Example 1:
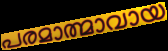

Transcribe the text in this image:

പരമാത്മാവായ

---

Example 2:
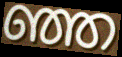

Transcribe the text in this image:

ഞ്ഞ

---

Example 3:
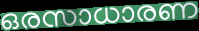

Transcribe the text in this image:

ഒരസാധാരണ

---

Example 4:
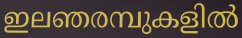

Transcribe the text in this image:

ഇലഞരമ്പുകളിൽ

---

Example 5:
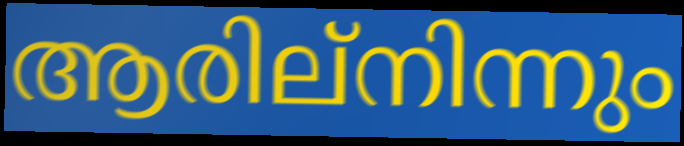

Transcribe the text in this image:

ആരില്നിന്നും